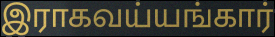
இராகவய்யங்கார்